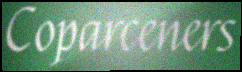
Coparceners